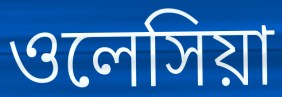
ওলেসিয়া